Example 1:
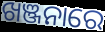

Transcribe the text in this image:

ଖଞ୍ଜନାରେ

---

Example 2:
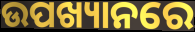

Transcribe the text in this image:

ଉପଖ୍ୟାନରେ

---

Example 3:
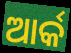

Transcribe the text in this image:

ଆର୍କ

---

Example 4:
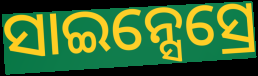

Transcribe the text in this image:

ସାଇନ୍ସେସ୍ରେ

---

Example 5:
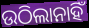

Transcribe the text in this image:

ଉଠିଲାନାହିଁ